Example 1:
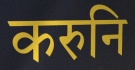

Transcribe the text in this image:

करुनि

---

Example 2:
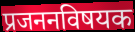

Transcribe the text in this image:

प्रजननविषयक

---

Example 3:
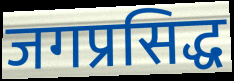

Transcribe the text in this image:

जगप्रसिद्ध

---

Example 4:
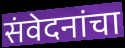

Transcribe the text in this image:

संवेदनांचा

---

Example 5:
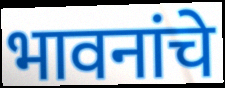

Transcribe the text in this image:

भावनांचे